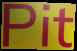
Pit